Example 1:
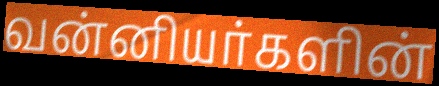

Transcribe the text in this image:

வன்னியர்களின்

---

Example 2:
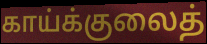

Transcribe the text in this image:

காய்க்குலைத்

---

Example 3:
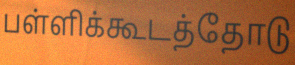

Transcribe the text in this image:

பள்ளிக்கூடத்தோடு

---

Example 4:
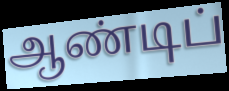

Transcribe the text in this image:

ஆண்டிப்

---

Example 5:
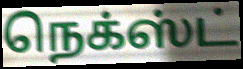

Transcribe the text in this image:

நெக்ஸ்ட்